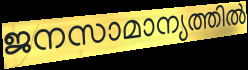
ജനസാമാന്യത്തിൽ